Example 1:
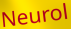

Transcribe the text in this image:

Neurol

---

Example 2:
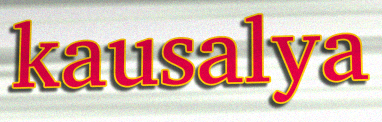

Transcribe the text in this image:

kausalya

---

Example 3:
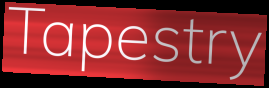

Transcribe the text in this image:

Tapestry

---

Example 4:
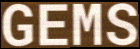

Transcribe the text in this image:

GEMS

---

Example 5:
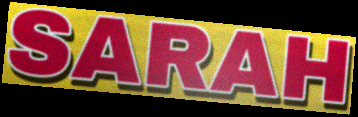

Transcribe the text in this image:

SARAH